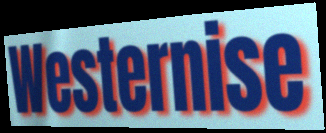
Westernise